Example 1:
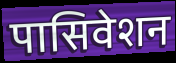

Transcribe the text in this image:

पासिवेशन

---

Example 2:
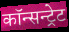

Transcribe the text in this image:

कॉन्सन्ट्रेट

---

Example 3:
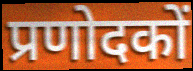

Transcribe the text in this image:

प्रणोदकों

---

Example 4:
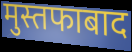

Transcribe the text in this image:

मुस्तफाबाद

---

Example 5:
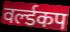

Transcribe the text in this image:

वर्ल्‍डकप